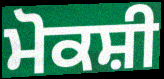
ਮੋਕਸ਼ੀ